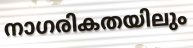
നാഗരികതയിലും